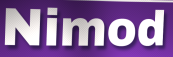
Nimod